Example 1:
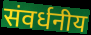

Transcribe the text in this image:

संवर्धनीय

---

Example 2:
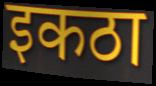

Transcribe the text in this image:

इकठा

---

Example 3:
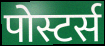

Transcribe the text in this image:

पोस्टर्स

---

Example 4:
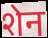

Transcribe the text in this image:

शेन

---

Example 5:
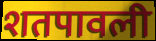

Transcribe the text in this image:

शतपावली